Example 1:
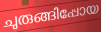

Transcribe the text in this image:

ചുരുങ്ങിപ്പോയ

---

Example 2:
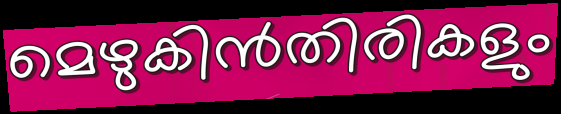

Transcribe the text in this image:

മെഴുകിൻതിരികളും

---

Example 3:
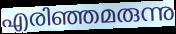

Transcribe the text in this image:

എരിഞ്ഞമരുന്നു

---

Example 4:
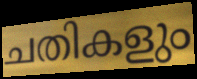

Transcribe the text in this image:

ചതികളും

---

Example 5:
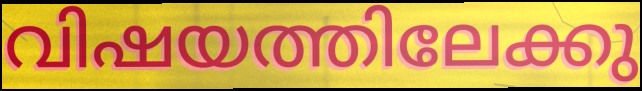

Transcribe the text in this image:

വിഷയത്തിലേക്കു